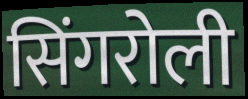
सिंगरोली